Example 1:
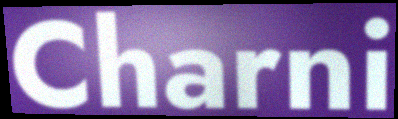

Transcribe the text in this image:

Charni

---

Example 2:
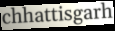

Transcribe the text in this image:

chhattisgarh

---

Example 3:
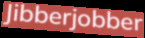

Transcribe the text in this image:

Jibberjobber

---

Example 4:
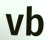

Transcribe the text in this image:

vb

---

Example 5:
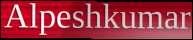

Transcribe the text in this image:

Alpeshkumar